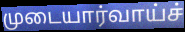
முடையார்வாய்ச்